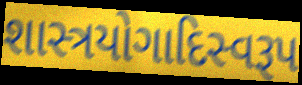
શાસ્ત્રયોગાદિસ્વરૂપ